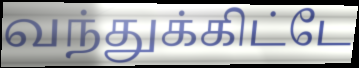
வந்துக்கிட்டே